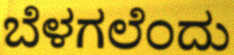
ಬೆಳಗಲೆಂದು